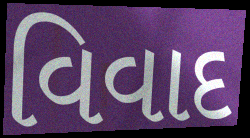
વિવાદ